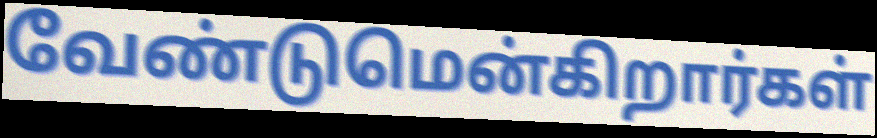
வேண்டுமென்கிறார்கள்